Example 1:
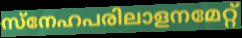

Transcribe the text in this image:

സ്നേഹപരിലാളനമേറ്റ്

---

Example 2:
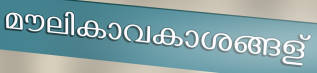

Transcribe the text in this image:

മൗലികാവകാശങ്ങള്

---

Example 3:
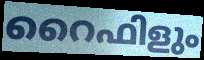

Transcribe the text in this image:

റൈഫിളും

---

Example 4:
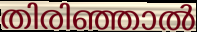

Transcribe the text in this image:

തിരിഞ്ഞാൽ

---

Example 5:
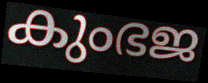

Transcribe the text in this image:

കുംഭജ